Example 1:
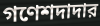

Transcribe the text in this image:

গণেশদাদার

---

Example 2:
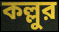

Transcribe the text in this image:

কল্লুর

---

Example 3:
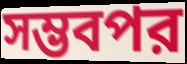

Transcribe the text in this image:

সম্ভবপর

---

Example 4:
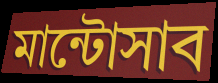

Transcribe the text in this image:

মান্টোসাব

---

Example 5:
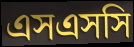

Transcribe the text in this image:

এসএসসি